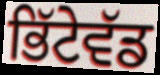
ਭਿੱਟੇਵੱਡ